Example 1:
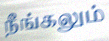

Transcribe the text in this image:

நீங்கலும்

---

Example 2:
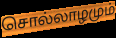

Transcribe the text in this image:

சொல்லாழமும்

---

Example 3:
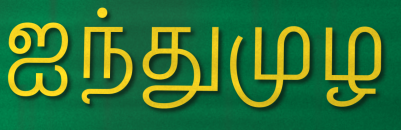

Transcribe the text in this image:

ஐந்துமுழ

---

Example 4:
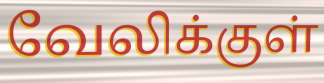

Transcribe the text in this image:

வேலிக்குள்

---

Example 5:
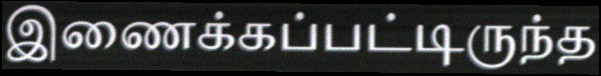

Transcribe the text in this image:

இணைக்கப்பட்டிருந்த